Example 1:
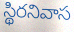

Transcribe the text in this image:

స్థిరనివాస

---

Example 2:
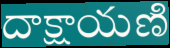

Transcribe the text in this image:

దాక్షాయణి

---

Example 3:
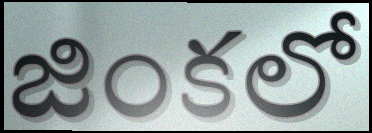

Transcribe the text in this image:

జింకలో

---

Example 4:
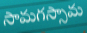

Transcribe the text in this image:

సామగస్సామ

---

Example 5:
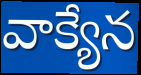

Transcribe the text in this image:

వాక్యేన